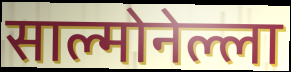
साल्मोनेल्ला